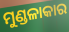
ମୁଣ୍ଡଳାକାର